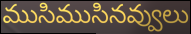
ముసిముసినవ్వులు